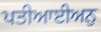
ਪਤੀਆਈਅਨੁ